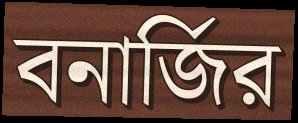
বনার্জির